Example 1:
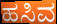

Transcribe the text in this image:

ಹಸಿವ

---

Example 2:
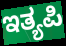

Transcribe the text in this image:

ಇತ್ಯಪಿ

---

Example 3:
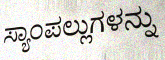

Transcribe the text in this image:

ಸ್ಯಾಂಪಲ್ಲುಗಳನ್ನು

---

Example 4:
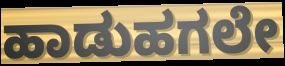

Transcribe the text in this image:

ಹಾಡುಹಗಲೇ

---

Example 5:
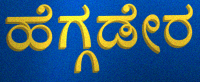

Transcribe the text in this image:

ಹೆಗ್ಗಡೇರ